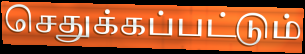
செதுக்கப்பட்டும்